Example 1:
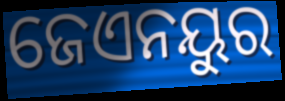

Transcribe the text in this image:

ଜେଏନୟୁର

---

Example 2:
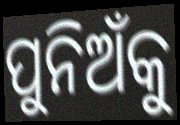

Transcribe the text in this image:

ପୁନିଅଁକୁ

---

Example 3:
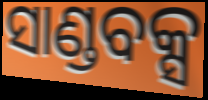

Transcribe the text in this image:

ସାଣ୍ଡବକ୍ସ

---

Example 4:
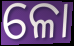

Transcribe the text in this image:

ଳୋ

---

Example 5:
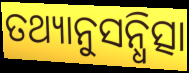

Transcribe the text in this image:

ତଥ୍ୟାନୁସନ୍ଧିତ୍ସା